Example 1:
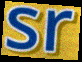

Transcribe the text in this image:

sr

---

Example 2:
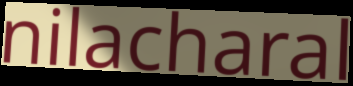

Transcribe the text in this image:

nilacharal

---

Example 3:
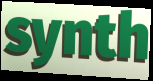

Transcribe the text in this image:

synth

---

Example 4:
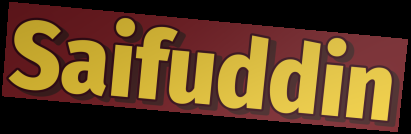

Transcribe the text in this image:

Saifuddin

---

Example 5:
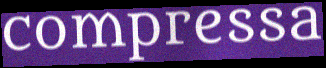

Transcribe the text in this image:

compressa